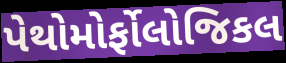
પેથોમોર્ફોલોજિકલ